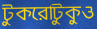
টুকরোটুকুও